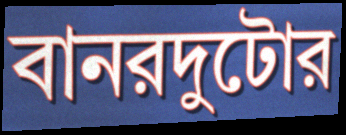
বানরদুটোর